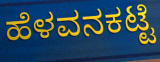
ಹೆಳವನಕಟ್ಟೆ